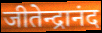
जीतेन्द्रानंद